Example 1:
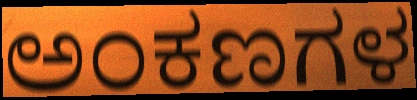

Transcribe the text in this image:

ಅಂಕಣಗಳ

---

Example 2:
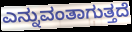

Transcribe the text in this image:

ಎನ್ನುವಂತಾಗುತ್ತದೆ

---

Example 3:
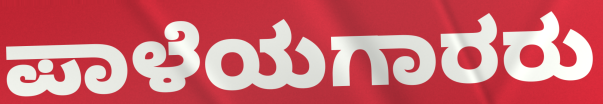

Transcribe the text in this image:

ಪಾಳೆಯಗಾರರು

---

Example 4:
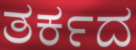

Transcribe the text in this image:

ತರ್ಕದ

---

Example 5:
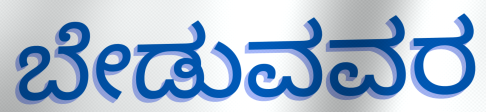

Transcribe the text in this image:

ಬೇಡುವವರ